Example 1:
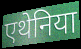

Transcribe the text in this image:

एथेनिया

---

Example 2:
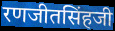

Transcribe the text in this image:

रणजीतसिंहजी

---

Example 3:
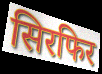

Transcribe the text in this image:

सिरफिर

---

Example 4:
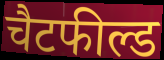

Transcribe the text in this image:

चैटफील्ड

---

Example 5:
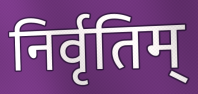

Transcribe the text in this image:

निर्वृतिम्